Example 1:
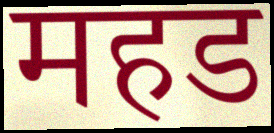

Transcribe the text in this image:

महड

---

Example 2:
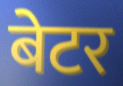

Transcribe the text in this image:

बेटर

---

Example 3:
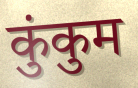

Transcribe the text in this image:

कुंकुम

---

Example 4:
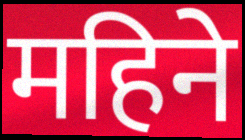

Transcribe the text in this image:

महिने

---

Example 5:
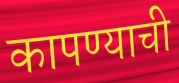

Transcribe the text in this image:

कापण्याची